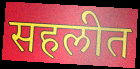
सहलीत